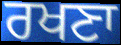
ਰਖਣਾ